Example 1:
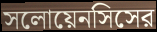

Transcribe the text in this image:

সলোয়েনসিসের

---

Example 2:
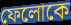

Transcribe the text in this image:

ফেলোকে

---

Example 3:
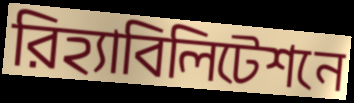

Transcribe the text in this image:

রিহ্যাবিলিটেশনে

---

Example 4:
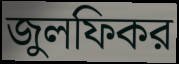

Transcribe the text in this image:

জুলফিকর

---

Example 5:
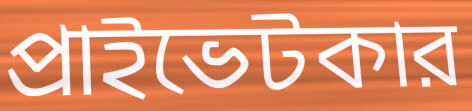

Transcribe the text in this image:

প্রাইভেটকার